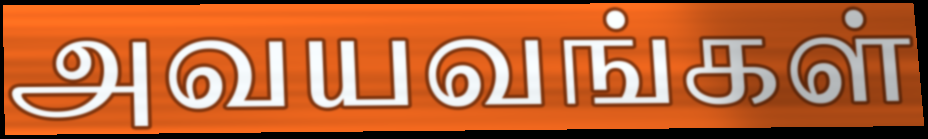
அவயவங்கள்